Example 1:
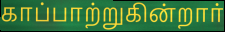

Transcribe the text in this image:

காப்பாற்றுகின்றார்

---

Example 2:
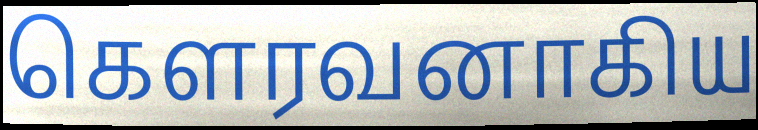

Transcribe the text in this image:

கௌரவனாகிய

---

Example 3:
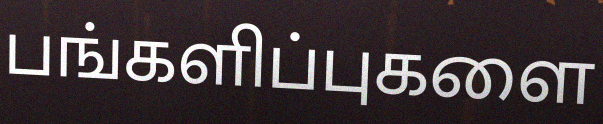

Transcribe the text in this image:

பங்களிப்புகளை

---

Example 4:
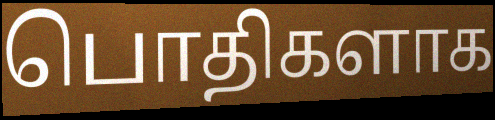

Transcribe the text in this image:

பொதிகளாக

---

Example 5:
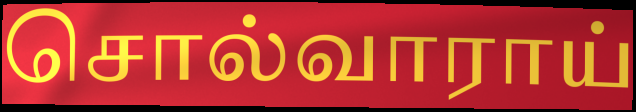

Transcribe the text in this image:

சொல்வாராய்